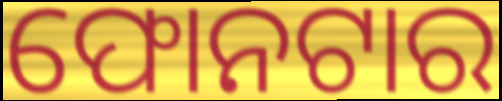
ଫୋନଟାର